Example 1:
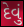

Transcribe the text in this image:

દેવું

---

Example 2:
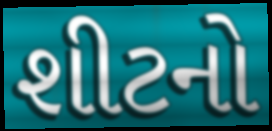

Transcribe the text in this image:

શીટનો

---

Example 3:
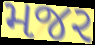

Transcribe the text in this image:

મજર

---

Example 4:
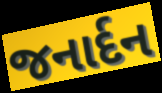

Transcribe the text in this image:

જનાર્દન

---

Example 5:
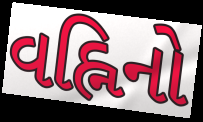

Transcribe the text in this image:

વહ્નિનો